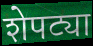
शेपट्या